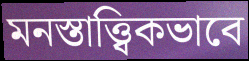
মনস্তাত্ত্বিকভাবে